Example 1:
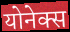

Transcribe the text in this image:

योनेक्स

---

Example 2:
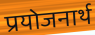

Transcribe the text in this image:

प्रयोजनार्थ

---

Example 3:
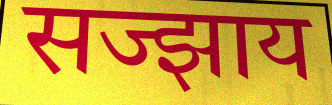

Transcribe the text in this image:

सज्झाय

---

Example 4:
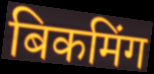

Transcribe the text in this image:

बिकमिंग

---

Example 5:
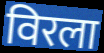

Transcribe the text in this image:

विरला